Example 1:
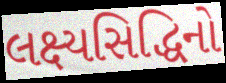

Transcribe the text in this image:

લક્ષ્યસિદ્ધિનો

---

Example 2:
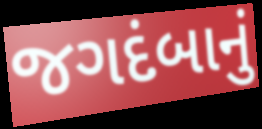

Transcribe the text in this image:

જગદંબાનું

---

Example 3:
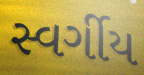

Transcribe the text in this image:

સ્વર્ગીય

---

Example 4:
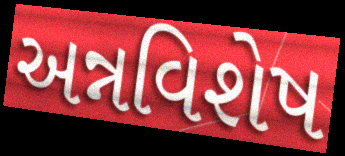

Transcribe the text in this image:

અન્નવિશેષ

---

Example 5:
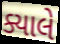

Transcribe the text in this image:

ક્યાલે